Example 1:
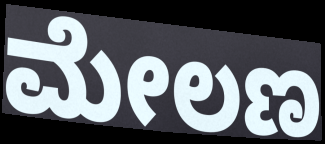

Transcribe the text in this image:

ಮೇಲಣ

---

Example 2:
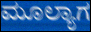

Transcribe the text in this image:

ಮೂಲ್ಯಾಗ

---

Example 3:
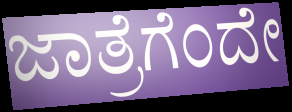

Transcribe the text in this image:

ಜಾತ್ರೆಗೆಂದೇ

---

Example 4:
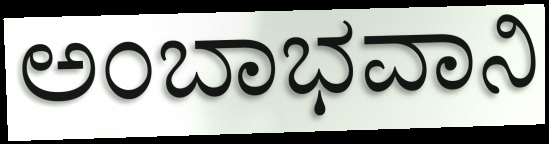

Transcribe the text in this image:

ಅಂಬಾಭವಾನಿ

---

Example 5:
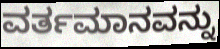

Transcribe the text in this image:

ವರ್ತಮಾನವನ್ನು